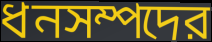
ধনসম্পদের